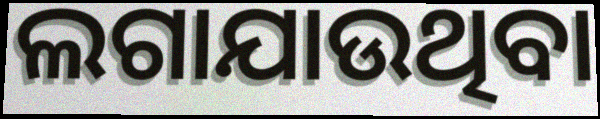
ଲଗାଯାଉଥିବା